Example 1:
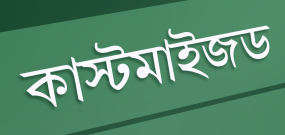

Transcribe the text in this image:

কাস্টমাইজড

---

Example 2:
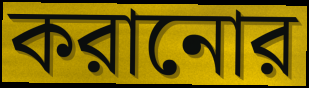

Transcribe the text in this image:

করানোর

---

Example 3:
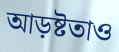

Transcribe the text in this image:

আড়ষ্টতাও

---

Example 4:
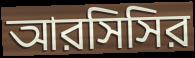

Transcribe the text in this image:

আরসিসির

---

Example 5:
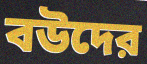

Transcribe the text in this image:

বউদের